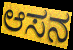
ಆಸನ